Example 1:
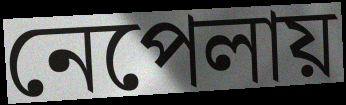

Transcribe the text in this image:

নেপেলায়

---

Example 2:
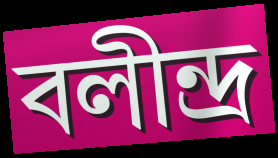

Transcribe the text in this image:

বলীন্দ্ৰ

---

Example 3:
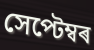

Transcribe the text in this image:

সেপ্টেম্বৰ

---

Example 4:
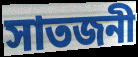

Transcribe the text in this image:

সাতজনী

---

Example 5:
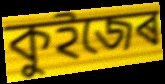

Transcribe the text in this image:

কুইজেৰ